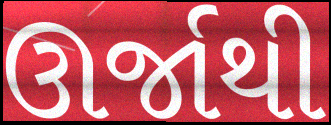
ઊર્જાથી